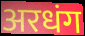
अरधंग